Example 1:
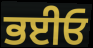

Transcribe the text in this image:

ਭਈਓ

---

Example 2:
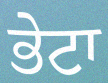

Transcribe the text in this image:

ਭੇਟਾ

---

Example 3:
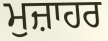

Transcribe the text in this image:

ਮੁਜ਼ਾਹਰ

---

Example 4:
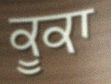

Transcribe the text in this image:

ਕੂਕਾ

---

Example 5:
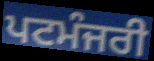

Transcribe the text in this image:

ਪਟਮੰਜਰੀ